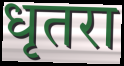
धृतरा